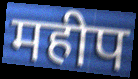
महीप